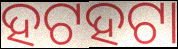
ହଟହଟା